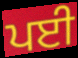
ਪਈ